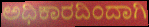
ಅಧಿಕಾರದಿಂದಾಗಿ